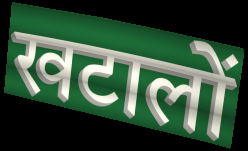
खटालों